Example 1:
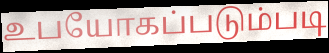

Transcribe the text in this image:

உபயோகப்படும்படி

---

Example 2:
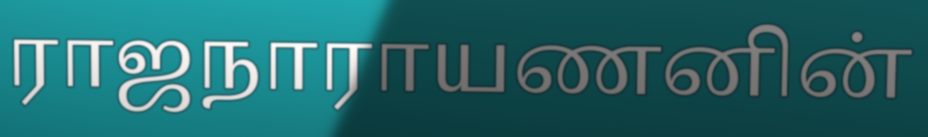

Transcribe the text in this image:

ராஜநாராயணனின்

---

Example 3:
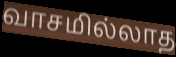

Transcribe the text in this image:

வாசமில்லாத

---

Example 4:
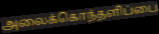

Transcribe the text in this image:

அலைக்கொந்தளிப்பை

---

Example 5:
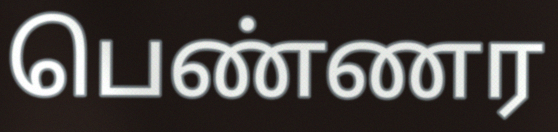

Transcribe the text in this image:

பெண்ணர